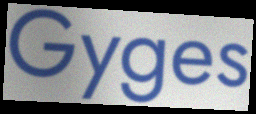
Gyges